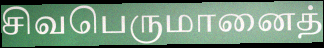
சிவபெருமானைத்